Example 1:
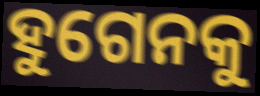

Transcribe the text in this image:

ହୁଗେନକୁ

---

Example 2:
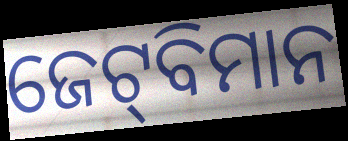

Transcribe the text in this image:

ଜେଟ୍‌ବିମାନ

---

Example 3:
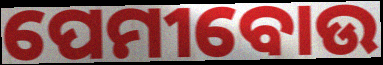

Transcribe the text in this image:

ପେମୀବୋଉ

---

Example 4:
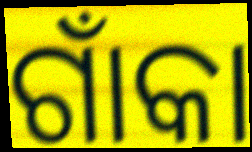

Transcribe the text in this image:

ଗାଁକା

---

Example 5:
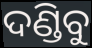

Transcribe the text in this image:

ଦଣ୍ଡିବୁ